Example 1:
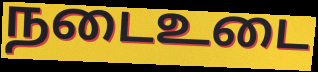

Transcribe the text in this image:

நடைஉடை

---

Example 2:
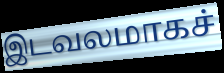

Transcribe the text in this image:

இடவலமாகச்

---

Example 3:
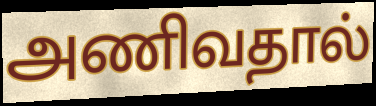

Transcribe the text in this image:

அணிவதால்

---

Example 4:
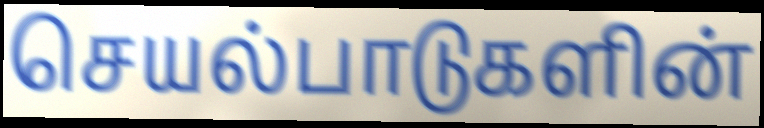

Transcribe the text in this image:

செயல்பாடுகளின்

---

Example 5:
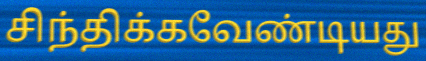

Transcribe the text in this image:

சிந்திக்கவேண்டியது